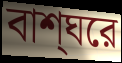
বাশ্ঘরে